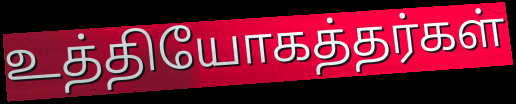
உத்தியோகத்தர்கள்